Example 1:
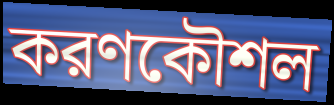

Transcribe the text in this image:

করণকৌশল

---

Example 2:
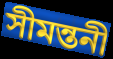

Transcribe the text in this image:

সীমন্তনী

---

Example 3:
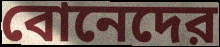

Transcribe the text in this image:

বোনেদের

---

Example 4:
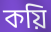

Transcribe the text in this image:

কয়ি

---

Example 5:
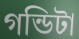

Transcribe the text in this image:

গন্ডিটা